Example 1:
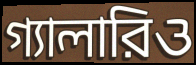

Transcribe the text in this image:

গ্যালারিও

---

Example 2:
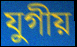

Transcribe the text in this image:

যুগীয়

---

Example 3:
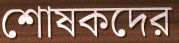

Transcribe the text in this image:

শোষকদের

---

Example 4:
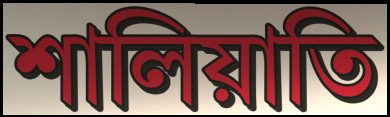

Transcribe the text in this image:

শালিয়াতি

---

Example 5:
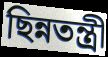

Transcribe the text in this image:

ছিন্নতন্ত্রী